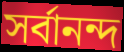
সর্বানন্দ